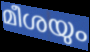
മീശയും